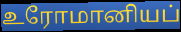
உரோமானியப்